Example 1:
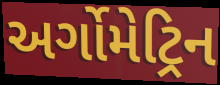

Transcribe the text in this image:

અર્ગોમેટ્રિન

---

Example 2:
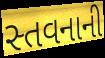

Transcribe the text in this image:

સ્તવનાની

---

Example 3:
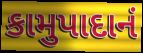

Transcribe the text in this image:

કામુપાદાનં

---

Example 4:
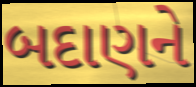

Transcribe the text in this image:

બદાણને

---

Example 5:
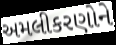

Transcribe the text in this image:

અમલીકરણોને